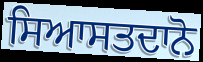
ਸਿਆਸਤਦਾਨੋ